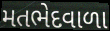
મતભેદવાળા